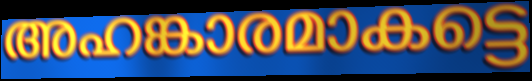
അഹങ്കാരമാകട്ടെ